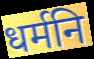
धर्मनि